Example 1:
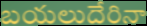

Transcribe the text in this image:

బయలుదేరినా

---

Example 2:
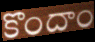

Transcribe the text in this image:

కొందాం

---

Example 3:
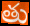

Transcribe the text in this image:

తు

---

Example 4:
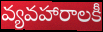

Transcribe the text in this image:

వ్యవహారాలకీ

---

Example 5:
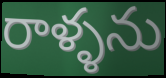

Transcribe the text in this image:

రాళ్ళను